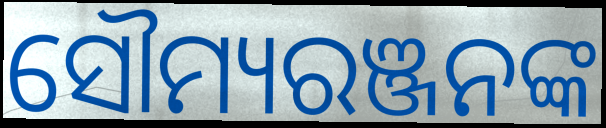
ସୌମ୍ୟରଞ୍ଜନଙ୍କ